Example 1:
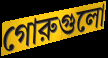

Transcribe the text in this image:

গোরুগুলো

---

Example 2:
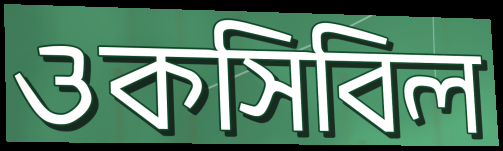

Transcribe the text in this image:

ওকসিবিল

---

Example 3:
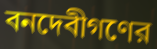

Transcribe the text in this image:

বনদেবীগণের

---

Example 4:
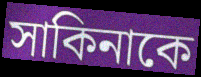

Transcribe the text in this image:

সাকিনাকে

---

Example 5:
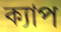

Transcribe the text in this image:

ক্যাপ